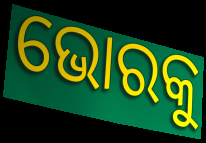
ଭୋରକୁ